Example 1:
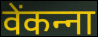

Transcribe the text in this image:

वेंकन्ना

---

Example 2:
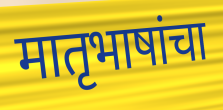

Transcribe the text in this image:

मातृभाषांचा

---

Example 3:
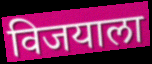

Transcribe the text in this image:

विजयाला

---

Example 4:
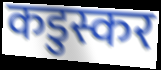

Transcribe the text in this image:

कडुस्कर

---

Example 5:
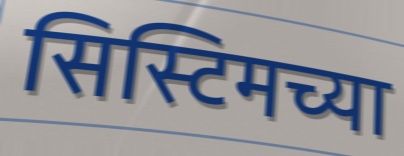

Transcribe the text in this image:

सिस्टिमच्या